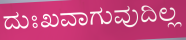
ದುಃಖವಾಗುವುದಿಲ್ಲ